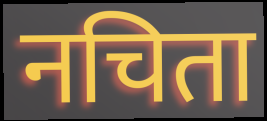
नचिता